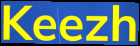
Keezh